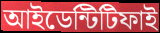
আইডেন্টিটিফাই